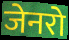
जेनरो